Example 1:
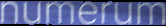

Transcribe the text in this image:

numerum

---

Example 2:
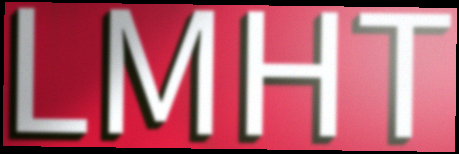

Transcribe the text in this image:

LMHT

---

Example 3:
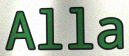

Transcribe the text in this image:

Alla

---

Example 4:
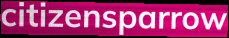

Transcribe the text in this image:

citizensparrow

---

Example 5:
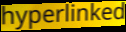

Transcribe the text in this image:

hyperlinked